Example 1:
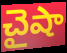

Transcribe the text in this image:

చైషా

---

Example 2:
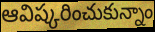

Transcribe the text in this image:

ఆవిష్కరించుకున్నాం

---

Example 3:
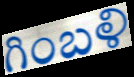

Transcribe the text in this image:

గింబళి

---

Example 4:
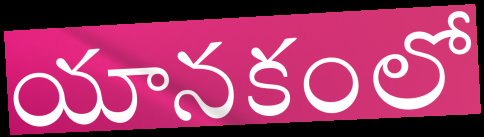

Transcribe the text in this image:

యానకంలో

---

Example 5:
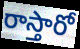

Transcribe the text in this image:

రాస్తారో